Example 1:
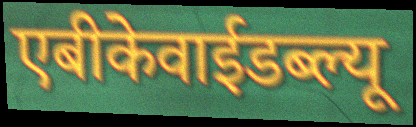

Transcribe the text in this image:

एबीकेवाईडब्ल्यू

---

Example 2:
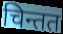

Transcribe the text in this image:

चिन्तत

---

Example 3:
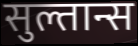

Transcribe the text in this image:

सुल्तान्स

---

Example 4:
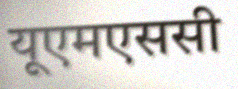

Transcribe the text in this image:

यूएमएससी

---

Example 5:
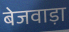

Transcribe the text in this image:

बेजवाड़ा